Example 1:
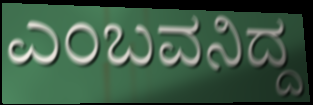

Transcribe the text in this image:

ಎಂಬವನಿದ್ದ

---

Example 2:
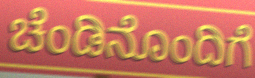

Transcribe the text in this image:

ಚೆಂಡಿನೊಂದಿಗೆ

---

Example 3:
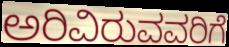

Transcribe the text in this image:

ಅರಿವಿರುವವರಿಗೆ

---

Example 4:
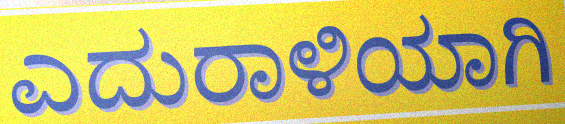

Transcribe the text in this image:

ಎದುರಾಳಿಯಾಗಿ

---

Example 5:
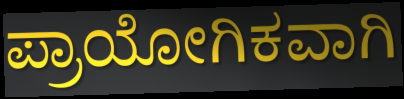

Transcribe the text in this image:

ಪ್ರಾಯೋಗಿಕವಾಗಿ